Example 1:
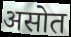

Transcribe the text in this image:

असोत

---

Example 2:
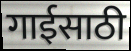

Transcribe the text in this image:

गाईसाठी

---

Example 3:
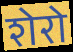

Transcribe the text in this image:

शेरो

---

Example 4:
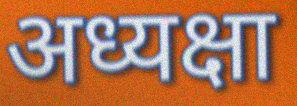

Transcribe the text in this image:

अध्यक्षा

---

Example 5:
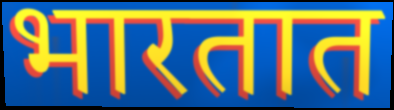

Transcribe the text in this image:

भारतात